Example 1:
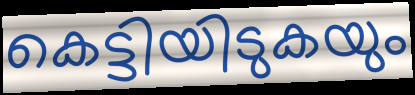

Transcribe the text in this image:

കെട്ടിയിടുകയും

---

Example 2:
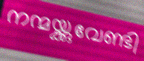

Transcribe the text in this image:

നന്മയ്ക്കുവേണ്ടി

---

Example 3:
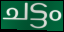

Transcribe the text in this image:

ചട്ടം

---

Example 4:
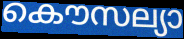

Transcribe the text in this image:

കൌസല്യാ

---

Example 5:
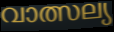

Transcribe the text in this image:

വാത്സല്യ